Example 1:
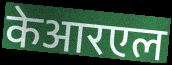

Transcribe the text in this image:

केआरएल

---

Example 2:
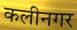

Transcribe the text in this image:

कलीनगर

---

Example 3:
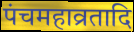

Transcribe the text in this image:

पंचमहाव्रतादि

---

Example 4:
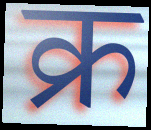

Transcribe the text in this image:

क्र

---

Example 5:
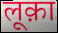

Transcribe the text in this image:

लूक़ा